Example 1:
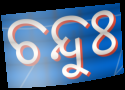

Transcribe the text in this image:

ଚନ୍ଦୁଃ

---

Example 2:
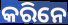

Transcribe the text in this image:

କରିନେ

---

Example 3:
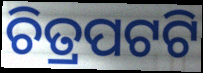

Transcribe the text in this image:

ଚିତ୍ରପଟଟି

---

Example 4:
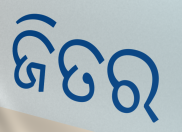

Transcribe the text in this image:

ଜିତର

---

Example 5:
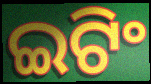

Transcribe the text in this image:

ଇଟିଂ